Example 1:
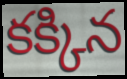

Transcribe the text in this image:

కక్కిన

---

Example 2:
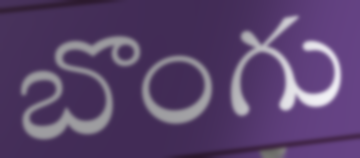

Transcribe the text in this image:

బొంగు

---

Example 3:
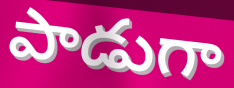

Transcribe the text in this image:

పాడుగా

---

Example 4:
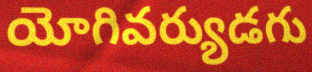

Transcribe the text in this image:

యోగివర్యుడగు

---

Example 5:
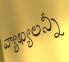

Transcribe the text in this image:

వ్యాఖ్యలన్నీ